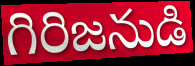
గిరిజనుడి